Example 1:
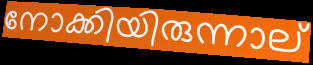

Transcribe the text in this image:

നോക്കിയിരുന്നാല്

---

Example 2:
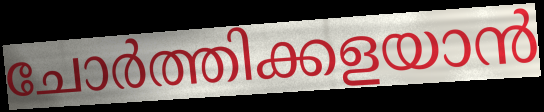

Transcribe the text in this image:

ചോർത്തിക്കളയാൻ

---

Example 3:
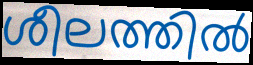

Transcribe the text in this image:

ശീലത്തിൽ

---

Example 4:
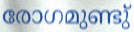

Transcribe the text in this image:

രോഗമുണ്ടു്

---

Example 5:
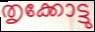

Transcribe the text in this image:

തൃക്കോട്ടു